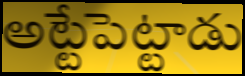
అట్టేపెట్టాడు